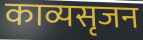
काव्यसृजन